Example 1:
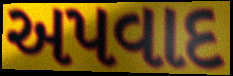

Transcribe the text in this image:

અપવાદ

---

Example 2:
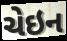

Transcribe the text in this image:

ચેઇન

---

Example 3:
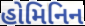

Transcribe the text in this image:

હોમિનિન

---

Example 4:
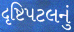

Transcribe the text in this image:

દૃષ્ટિપટલનું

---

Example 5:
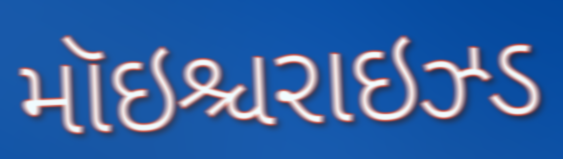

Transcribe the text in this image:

મૉઇશ્ચરાઇઝ્ડ